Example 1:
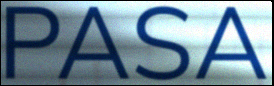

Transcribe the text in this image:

PASA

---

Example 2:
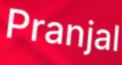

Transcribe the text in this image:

Pranjal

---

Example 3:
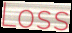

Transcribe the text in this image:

Loss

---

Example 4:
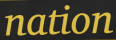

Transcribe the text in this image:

nation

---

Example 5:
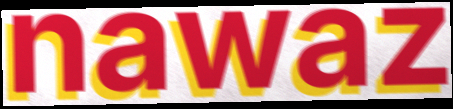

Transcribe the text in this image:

nawaz